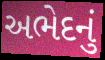
અભેદનું